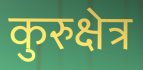
कुरुक्षेत्र